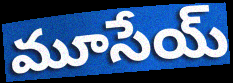
మూసేయ్